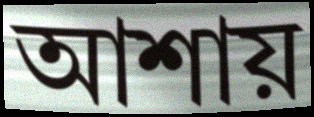
আশায়